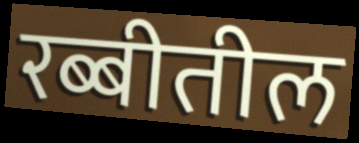
रब्बीतील